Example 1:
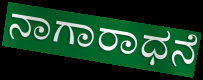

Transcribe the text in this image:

ನಾಗಾರಾಧನೆ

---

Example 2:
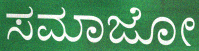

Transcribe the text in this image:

ಸಮಾಜೋ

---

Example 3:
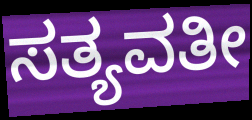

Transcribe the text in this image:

ಸತ್ಯವತೀ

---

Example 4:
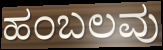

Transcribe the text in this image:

ಹಂಬಲವು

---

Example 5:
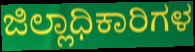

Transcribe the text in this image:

ಜಿಲ್ಲಾಧಿಕಾರಿಗಳ